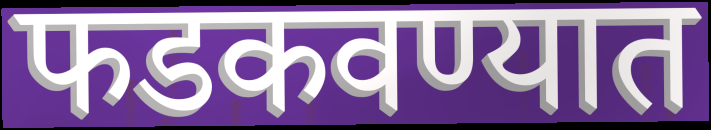
फडकवण्यात